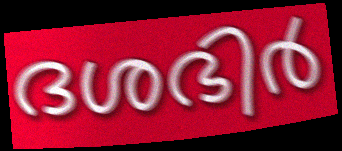
ദശഭിർ